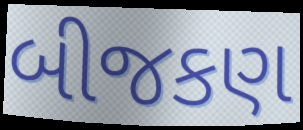
બીજકણ